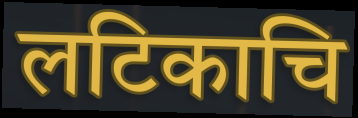
लटिकाचि